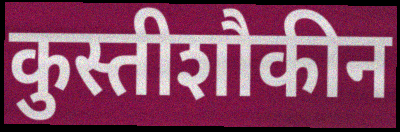
कुस्तीशौकीन